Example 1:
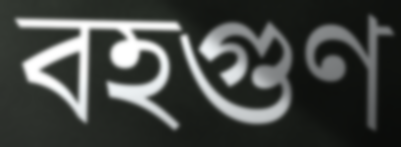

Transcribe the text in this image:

বহগুণ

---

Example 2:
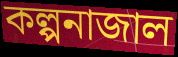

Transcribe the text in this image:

কল্পনাজাল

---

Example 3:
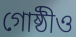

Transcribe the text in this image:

গোষ্ঠীও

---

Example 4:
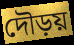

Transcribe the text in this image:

দৌড়য়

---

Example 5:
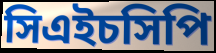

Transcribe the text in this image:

সিএইচসিপি